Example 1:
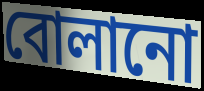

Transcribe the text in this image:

বোলানো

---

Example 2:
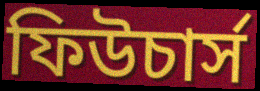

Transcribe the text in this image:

ফিউচার্স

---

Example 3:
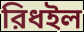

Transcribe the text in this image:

রিধইল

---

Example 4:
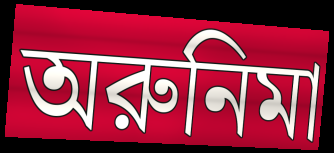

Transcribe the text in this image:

অরুনিমা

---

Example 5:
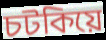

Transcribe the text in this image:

চটকিয়ে